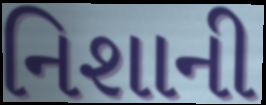
નિશાની